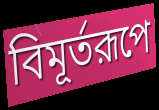
বিমূর্তরূপে